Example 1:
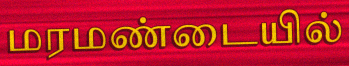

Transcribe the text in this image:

மரமண்டையில்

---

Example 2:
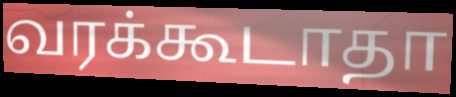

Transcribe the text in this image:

வரக்கூடாதா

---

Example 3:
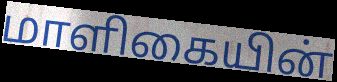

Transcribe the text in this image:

மாளிகையின்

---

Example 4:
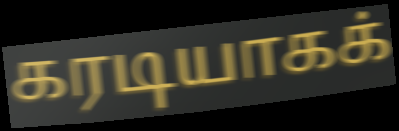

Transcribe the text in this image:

கரடியாகக்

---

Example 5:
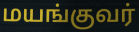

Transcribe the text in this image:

மயங்குவர்